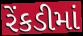
રેંકડીમાં